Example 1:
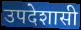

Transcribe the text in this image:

उपदेशासी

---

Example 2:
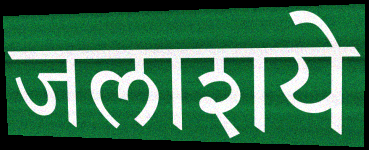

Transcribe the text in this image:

जलाशये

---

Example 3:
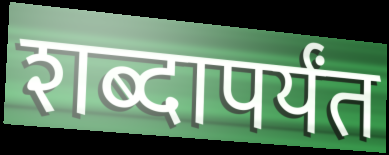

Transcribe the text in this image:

शब्दापर्यंत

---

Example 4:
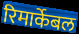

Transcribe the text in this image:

रिमार्केबल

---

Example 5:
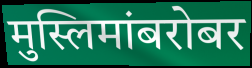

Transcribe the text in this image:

मुस्लिमांबरोबर